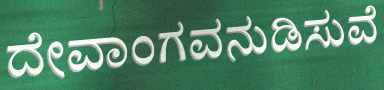
ದೇವಾಂಗವನುಡಿಸುವೆ